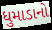
ધુમાડાનો